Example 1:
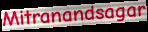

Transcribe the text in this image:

Mitranandsagar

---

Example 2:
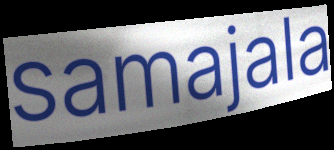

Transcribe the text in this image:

samajala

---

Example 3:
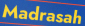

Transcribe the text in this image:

Madrasah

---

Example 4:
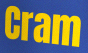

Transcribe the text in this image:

Cram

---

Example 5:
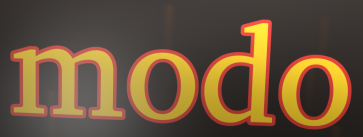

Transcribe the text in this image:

modo